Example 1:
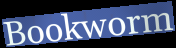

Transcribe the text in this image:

Bookworm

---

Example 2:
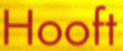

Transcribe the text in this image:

Hooft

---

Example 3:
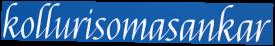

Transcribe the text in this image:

kollurisomasankar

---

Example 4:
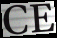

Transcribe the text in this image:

CE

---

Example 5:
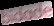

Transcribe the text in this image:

bidade